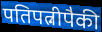
पतिपत्नीपैकी